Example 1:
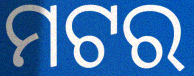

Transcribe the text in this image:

ମଟର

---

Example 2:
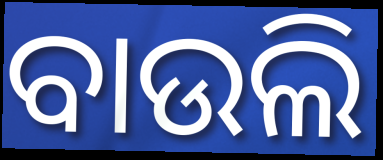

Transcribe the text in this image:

ବାଉଲି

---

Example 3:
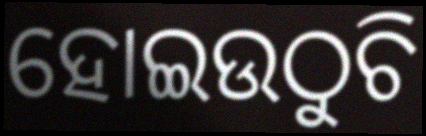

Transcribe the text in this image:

ହୋଇଉଠୁଚି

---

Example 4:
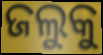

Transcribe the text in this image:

ଜଲୁକୁ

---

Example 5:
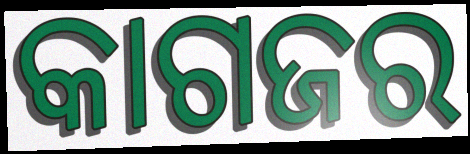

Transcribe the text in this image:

କାଗଜର